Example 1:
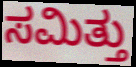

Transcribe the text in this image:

ಸಮಿತ್ತು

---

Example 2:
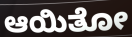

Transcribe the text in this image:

ಆಯಿತೋ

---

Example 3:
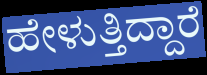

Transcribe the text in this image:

ಹೇಳುತ್ತಿದ್ದಾರೆ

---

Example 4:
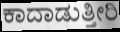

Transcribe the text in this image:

ಕಾದಾಡುತ್ತೀರಿ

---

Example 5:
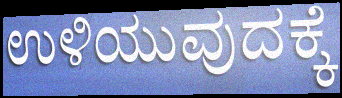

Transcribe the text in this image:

ಉಳಿಯುವುದಕ್ಕೆ